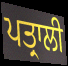
ਪਤ੍ਰਾਲੀ